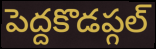
పెద్దకొడప్గల్